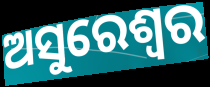
ଅସୁରେଶ୍ୱର